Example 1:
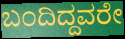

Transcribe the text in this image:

ಬಂದಿದ್ದವರೇ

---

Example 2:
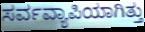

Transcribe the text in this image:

ಸರ್ವವ್ಯಾಪಿಯಾಗಿತ್ತು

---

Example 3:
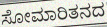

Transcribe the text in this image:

ಸೋಮಾರಿತನದ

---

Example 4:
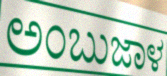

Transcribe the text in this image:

ಅಂಬುಜಾಳ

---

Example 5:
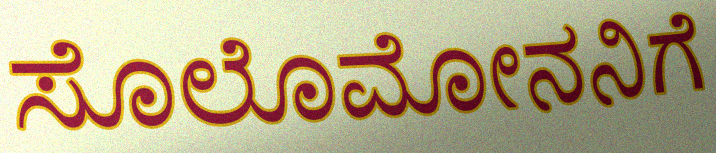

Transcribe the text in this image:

ಸೊಲೊಮೋನನಿಗೆ